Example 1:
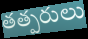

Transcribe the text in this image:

తత్పరులు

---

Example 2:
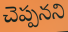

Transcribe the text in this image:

చెప్పనని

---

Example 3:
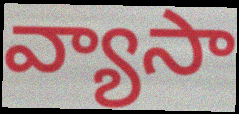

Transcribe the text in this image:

వ్యాసా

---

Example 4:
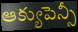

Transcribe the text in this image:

ఆక్యుపెన్సీ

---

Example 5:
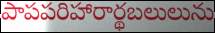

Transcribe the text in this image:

పాపపరిహారార్థబలులును